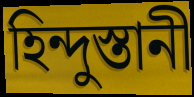
হিন্দুস্তানী